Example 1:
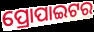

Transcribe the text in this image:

ପ୍ରୋପାଇଟର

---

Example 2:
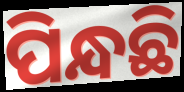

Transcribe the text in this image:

ପିନ୍ଧଛି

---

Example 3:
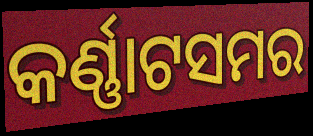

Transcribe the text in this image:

କର୍ଣ୍ଣାଟସମର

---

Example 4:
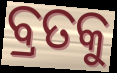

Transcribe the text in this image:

ବ୍ରତକୁ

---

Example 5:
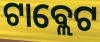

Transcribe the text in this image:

ଟାବ୍ଲେଟ